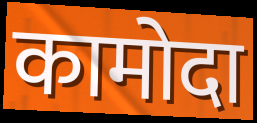
कामोदा